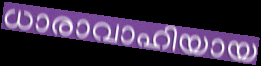
ധാരാവാഹിയായ